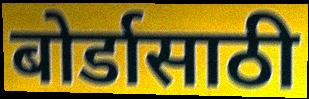
बोर्डासाठी